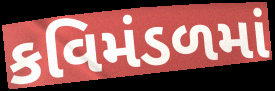
કવિમંડળમાં